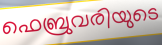
ഫെബ്രുവരിയുടെ